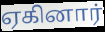
ஏகினார்